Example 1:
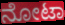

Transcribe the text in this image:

ನೋಟಾ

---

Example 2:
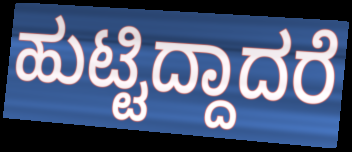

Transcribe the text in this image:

ಹುಟ್ಟಿದ್ದಾದರೆ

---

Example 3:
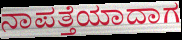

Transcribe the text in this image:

ನಾಪತ್ತೆಯಾದಾಗ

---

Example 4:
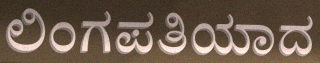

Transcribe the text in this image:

ಲಿಂಗಪತಿಯಾದ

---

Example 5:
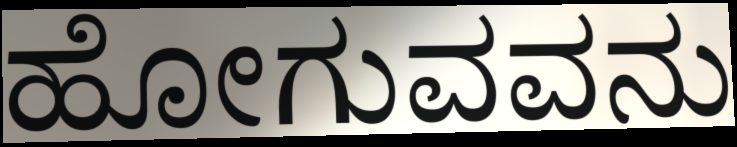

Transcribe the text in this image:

ಹೋಗುವವನು